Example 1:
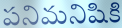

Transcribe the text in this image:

పనిమనిషికి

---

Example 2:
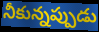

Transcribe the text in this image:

నీకున్నప్పుడు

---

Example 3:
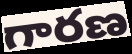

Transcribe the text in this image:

గారణ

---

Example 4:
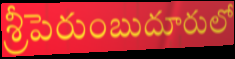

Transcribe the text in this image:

శ్రీపెరుంబుదూరులో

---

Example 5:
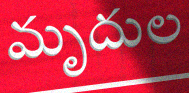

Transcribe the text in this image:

మృదుల